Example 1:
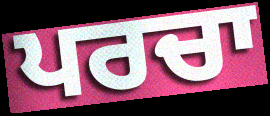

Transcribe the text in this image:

ਪਰਚਾ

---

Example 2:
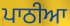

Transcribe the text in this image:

ਪਾਠੀਆ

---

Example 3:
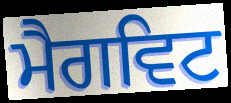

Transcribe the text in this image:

ਮੈਗਵਿਟ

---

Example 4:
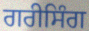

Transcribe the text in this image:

ਗਰੀਸਿੰਗ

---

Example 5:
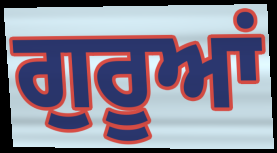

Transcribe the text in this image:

ਗੁਰੂਆਂ